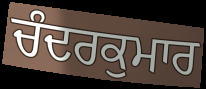
ਚੰਦਰਕੁਮਾਰ